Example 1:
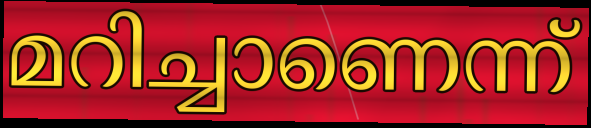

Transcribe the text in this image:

മറിച്ചാണെന്ന്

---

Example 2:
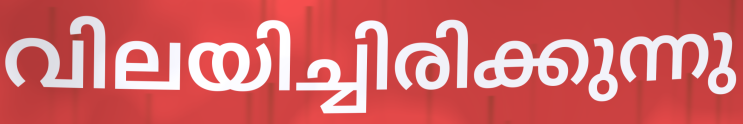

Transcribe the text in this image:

വിലയിച്ചിരിക്കുന്നു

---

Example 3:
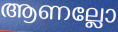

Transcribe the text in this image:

ആണല്ലോ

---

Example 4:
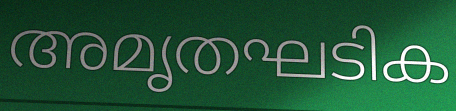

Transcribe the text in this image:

അമൃതഘടിക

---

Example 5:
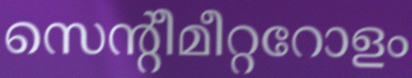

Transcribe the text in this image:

സെന്റീമീറ്ററോളം